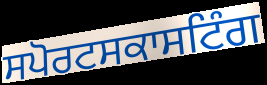
ਸਪੋਰਟਸਕਾਸਟਿੰਗ